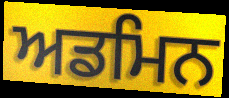
ਅਡਮਿਨ